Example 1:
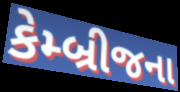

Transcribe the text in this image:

કેમ્બ્રીજના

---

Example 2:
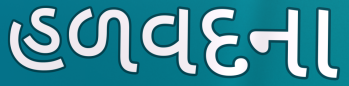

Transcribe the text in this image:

હળવદના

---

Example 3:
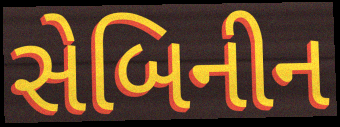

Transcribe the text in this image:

સેબિનીન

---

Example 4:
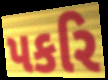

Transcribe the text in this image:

પકરિ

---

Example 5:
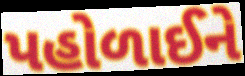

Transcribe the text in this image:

પહોળાઈને